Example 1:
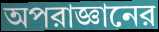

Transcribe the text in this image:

অপরাজ্ঞানের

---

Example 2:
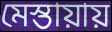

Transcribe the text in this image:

মেস্তায়ায়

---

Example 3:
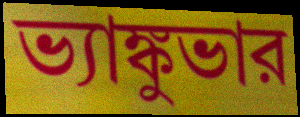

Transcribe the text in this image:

ভ্যাঙ্কুভার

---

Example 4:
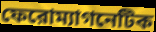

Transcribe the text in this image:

ফেরোম্যাগনেটিক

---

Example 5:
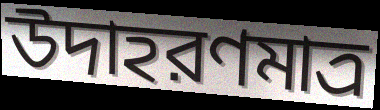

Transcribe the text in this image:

উদাহরণমাত্র